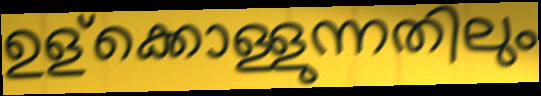
ഉള്ക്കൊള്ളുന്നതിലും